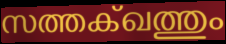
സത്തക്ഖത്തും